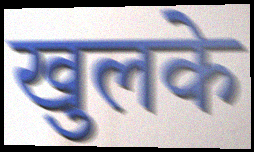
खुलके